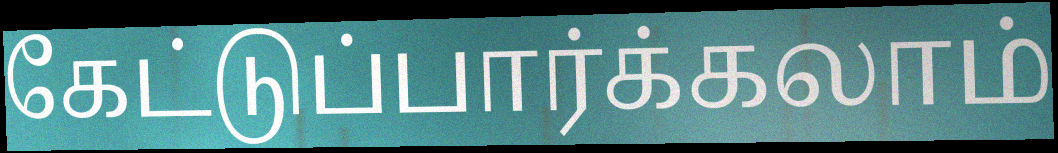
கேட்டுப்பார்க்கலாம்